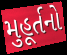
મુહૂર્તનો